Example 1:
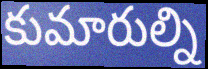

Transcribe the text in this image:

కుమారుల్ని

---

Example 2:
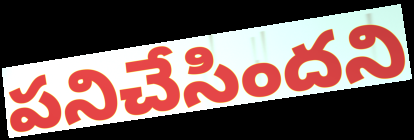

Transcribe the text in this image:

పనిచేసిందని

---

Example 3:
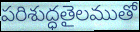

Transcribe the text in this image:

పరిశుద్ధతైలముతో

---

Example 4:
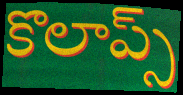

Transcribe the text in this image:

కొలాప్స్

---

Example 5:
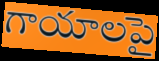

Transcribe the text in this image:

గాయాలపై